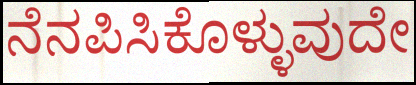
ನೆನಪಿಸಿಕೊಳ್ಳುವುದೇ